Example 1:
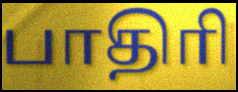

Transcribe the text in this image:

பாதிரி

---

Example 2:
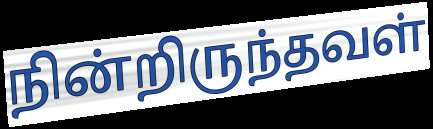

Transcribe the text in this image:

நின்றிருந்தவள்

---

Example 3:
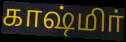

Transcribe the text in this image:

காஷ்மிர்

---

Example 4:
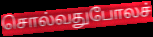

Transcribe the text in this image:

சொல்வதுபோலச்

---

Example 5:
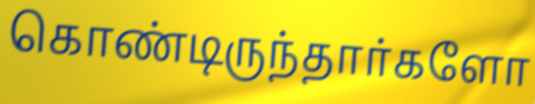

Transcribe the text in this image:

கொண்டிருந்தார்களோ